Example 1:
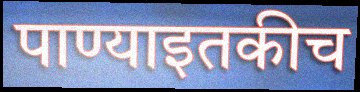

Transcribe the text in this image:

पाण्याइतकीच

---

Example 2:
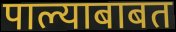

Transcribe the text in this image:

पाल्याबाबत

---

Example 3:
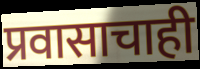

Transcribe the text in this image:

प्रवासाचाही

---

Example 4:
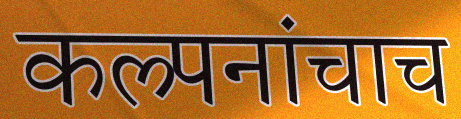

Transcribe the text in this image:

कल्पनांचाच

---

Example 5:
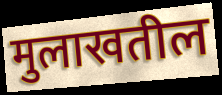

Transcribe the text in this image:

मुलाखतील